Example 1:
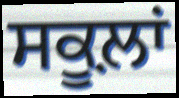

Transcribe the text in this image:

ਸਕੂਲ਼ਾਂ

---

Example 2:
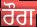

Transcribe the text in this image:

ਰੌਗ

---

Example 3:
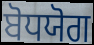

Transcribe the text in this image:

ਬੋਧਯੋਗ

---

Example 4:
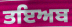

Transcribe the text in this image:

ਤਇਅਬ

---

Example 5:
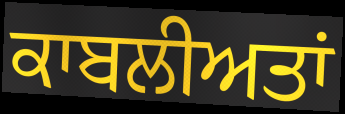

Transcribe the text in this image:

ਕਾਬਲੀਅਤਾਂ